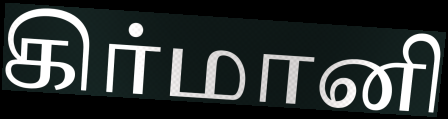
கிர்மானி